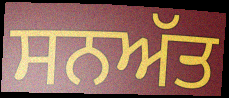
ਸਨਅੱਤ